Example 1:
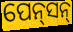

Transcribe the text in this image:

ପେନ୍‍ସନ୍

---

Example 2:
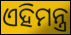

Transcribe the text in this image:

ଏହିମନ୍ତ୍ର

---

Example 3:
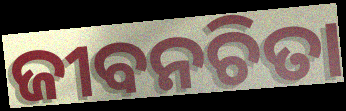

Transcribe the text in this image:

ଜୀବନଚିତା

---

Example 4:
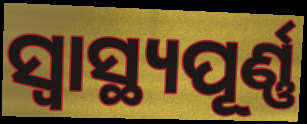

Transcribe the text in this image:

ସ୍ବାସ୍ଥ୍ୟପୂର୍ଣ୍ଣ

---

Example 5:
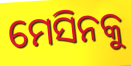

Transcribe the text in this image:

ମେସିନକୁ